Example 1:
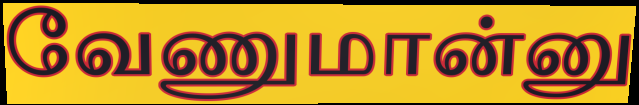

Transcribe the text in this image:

வேணுமான்னு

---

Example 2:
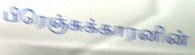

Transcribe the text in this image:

பிரெஞ்சுக்காரனின்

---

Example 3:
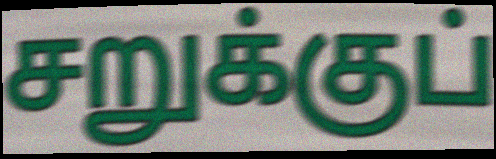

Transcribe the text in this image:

சறுக்குப்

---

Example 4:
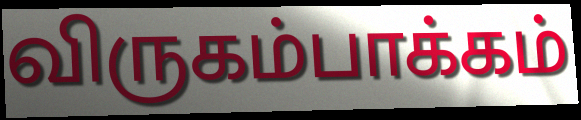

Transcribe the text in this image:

விருகம்பாக்கம்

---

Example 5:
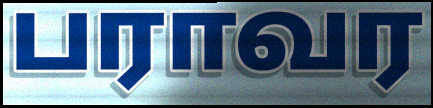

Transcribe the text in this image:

பராவர